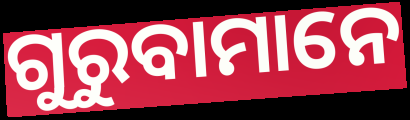
ଗୁରୁବାମାନେ